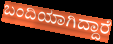
ಬಂದಿಯಾಗಿದ್ದಾರೆ